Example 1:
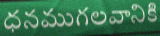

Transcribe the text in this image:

ధనముగలవానికి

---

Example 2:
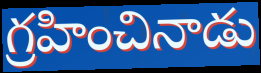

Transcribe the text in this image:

గ్రహించినాడు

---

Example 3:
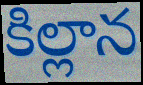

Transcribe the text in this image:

కిల్లాన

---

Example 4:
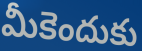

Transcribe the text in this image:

మీకెందుకు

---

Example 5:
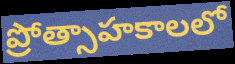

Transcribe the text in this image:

ప్రోత్సాహకాలలో